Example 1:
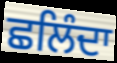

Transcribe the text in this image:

ਛਲਿੰਦਾ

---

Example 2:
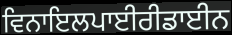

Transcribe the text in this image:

ਵਿਨਾਇਲਪਾਈਰੀਡਾਈਨ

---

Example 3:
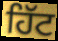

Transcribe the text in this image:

ਹਿੱਟ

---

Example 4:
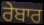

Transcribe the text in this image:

ਰੇਬਾਰ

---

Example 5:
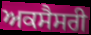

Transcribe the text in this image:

ਅਕਸੈਸਰੀ